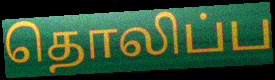
தொலிப்ப